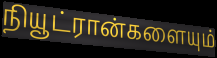
நியூட்ரான்களையும்